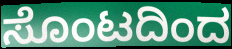
ಸೊಂಟದಿಂದ